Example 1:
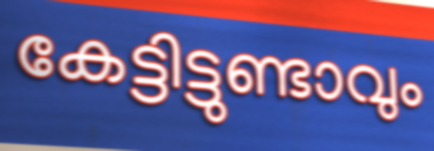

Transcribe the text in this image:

കേട്ടിട്ടുണ്ടാവും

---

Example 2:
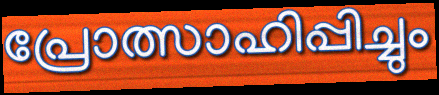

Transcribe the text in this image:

പ്രോത്സാഹിപ്പിച്ചും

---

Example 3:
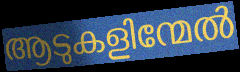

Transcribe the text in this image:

ആടുകളിന്മേൽ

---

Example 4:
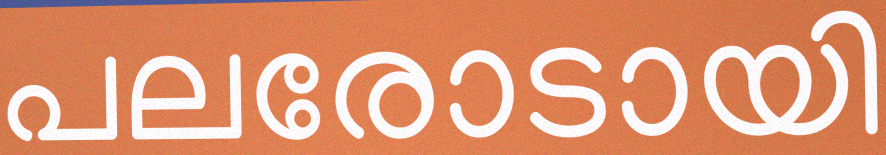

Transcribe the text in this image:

പലരോടായി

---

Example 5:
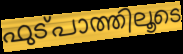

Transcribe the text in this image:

ഫുട്പാത്തിലൂടെ